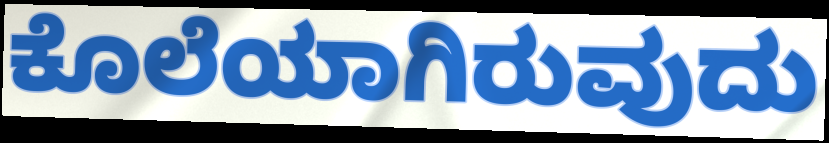
ಕೊಲೆಯಾಗಿರುವುದು